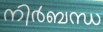
നിർബന്ധ